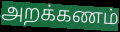
அறக்கணம்